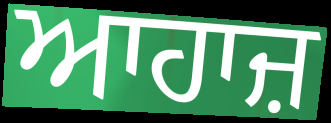
ਆਹਾਜ਼